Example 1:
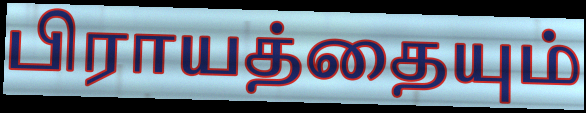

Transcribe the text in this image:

பிராயத்தையும்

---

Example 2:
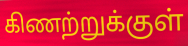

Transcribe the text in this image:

கிணற்றுக்குள்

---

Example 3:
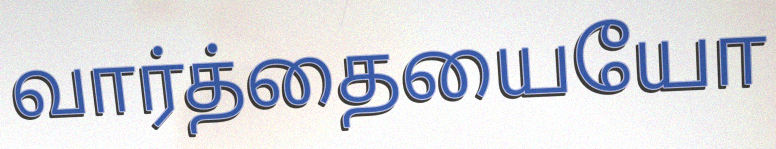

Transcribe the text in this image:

வார்த்தையையோ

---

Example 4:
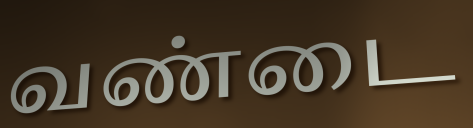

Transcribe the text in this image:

வண்டை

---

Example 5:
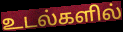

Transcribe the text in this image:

உடல்களில்